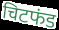
चिटफंड